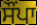
ਸੌਂਪਾ